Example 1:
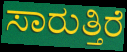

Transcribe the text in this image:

ಸಾರುತ್ತಿರೆ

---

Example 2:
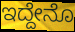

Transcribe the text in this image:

ಇದ್ದೇನೊ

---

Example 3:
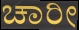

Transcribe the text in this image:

ಚಾರೀ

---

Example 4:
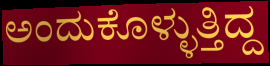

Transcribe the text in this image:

ಅಂದುಕೊಳ್ಳುತ್ತಿದ್ದ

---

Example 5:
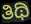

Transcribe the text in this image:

ತಿಥಿ